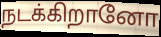
நடக்கிறானோ